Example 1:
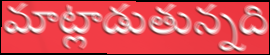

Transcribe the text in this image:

మాట్లాడుతున్నది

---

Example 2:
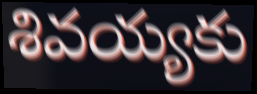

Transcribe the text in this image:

శివయ్యకు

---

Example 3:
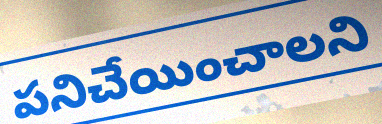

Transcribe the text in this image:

పనిచేయించాలని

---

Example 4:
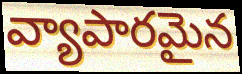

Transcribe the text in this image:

వ్యాపారమైన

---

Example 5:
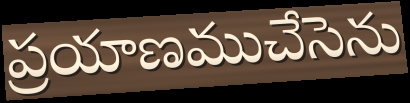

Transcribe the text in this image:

ప్రయాణముచేసెను